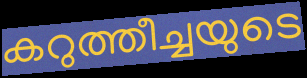
കറുത്തീച്ചയുടെ